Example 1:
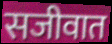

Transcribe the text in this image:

सजीवात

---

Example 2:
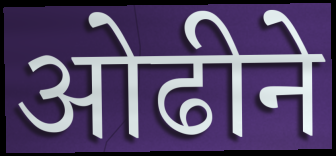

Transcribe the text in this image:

ओढीने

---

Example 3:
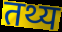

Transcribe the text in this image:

तथ्य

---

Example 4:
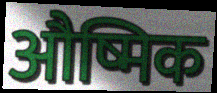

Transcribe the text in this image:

औष्मिक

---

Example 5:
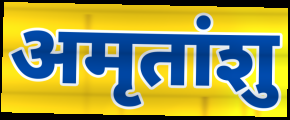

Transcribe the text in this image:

अमृतांशु